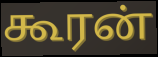
கூரன்